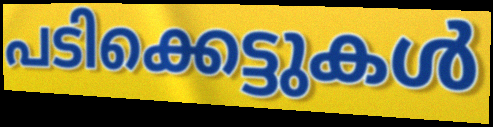
പടിക്കെട്ടുകൾ